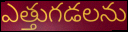
ఎత్తుగడలను